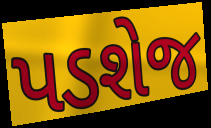
પડશેજ